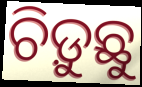
ଚିଡ଼ୁଛୁ